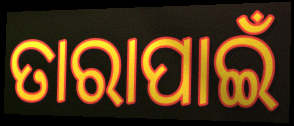
ତାରାପାଇଁ